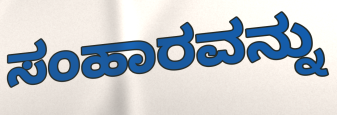
ಸಂಹಾರವನ್ನು